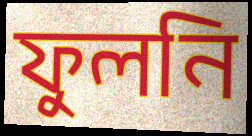
ফুলনি